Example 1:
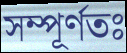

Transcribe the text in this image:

সম্পূর্ণতঃ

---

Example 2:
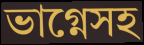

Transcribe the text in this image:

ভাগ্নেসহ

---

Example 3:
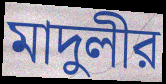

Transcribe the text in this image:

মাদুলীর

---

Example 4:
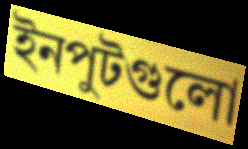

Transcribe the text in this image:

ইনপুটগুলো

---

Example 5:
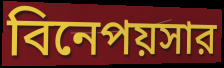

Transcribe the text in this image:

বিনেপয়সার